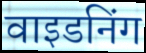
वाइडनिंग